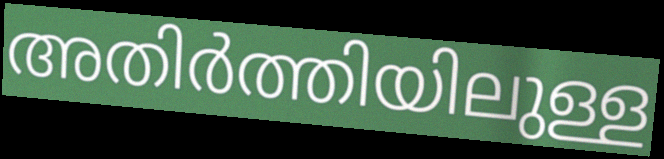
അതിർത്തിയിലുള്ള